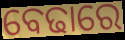
ବେଢାରେ